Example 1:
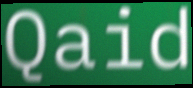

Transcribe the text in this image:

Qaid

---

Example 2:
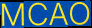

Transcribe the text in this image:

MCAO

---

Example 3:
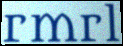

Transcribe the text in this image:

rmrl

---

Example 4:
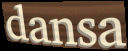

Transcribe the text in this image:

dansa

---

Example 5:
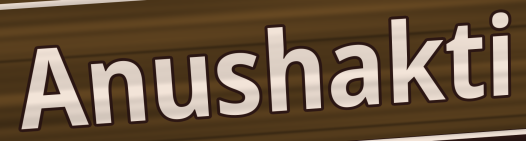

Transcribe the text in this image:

Anushakti